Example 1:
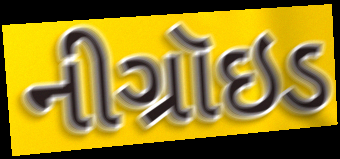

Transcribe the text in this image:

નીગ્રૉઇડ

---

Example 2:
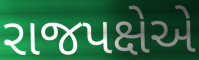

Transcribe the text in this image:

રાજપક્ષેએ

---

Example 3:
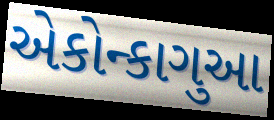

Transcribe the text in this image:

એકોન્કાગુઆ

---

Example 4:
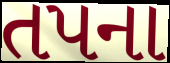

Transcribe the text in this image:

તપના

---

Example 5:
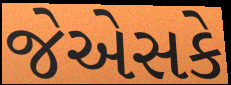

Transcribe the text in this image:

જેએસકે